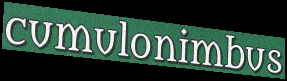
cumulonimbus